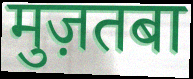
मुज़तबा